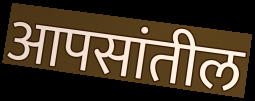
आपसांतील